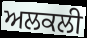
ਅਲਕਲੀ